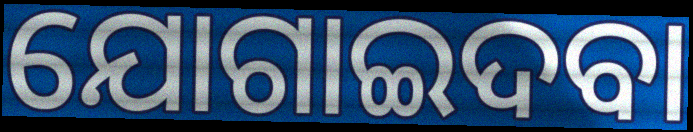
ଯୋଗାଇଦବା